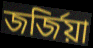
জৰ্জিয়া